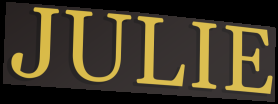
JULIE